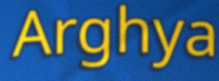
Arghya